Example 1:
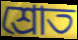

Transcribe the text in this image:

শ্ৰোত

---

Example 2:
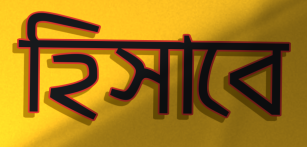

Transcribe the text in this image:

হিসাবে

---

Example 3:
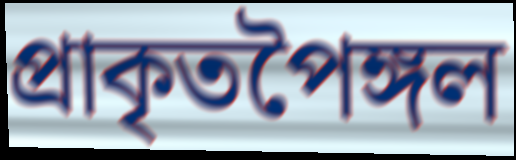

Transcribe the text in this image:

প্ৰাকৃতপৈঙ্গল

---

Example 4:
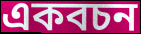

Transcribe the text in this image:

একবচন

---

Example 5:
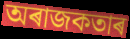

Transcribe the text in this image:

অৰাজকতাৰ